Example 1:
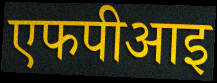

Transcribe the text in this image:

एफपीआइ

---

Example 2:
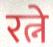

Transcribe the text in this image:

रत्ने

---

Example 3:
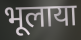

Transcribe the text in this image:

भूलाया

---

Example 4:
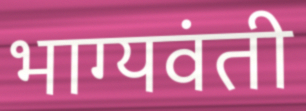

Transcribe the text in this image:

भाग्यवंती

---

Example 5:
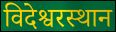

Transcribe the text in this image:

विदेश्वरस्थान